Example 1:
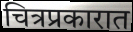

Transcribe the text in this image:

चित्रप्रकारात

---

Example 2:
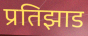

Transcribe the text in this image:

प्रतिझाड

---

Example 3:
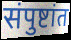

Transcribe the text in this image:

संपुष्टांत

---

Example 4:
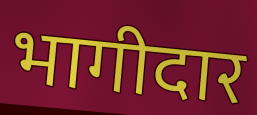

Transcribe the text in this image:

भागीदार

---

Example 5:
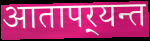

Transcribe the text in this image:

आतापर्यन्त